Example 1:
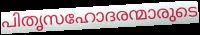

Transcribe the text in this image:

പിതൃസഹോദരന്മാരുടെ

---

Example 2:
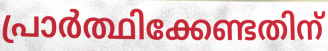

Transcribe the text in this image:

പ്രാർത്ഥിക്കേണ്ടതിന്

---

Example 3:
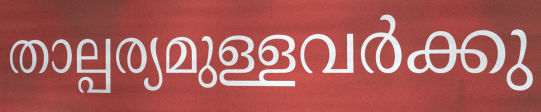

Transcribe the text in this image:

താല്പര്യമുള്ളവർക്കു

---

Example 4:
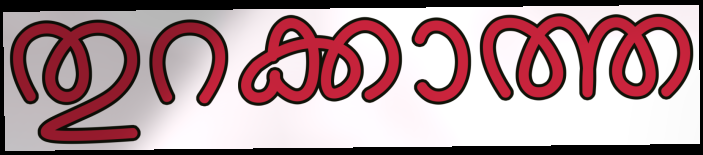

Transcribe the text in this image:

തുറക്കാത്ത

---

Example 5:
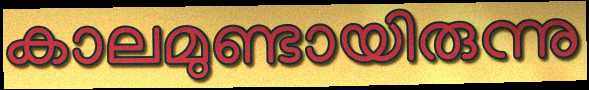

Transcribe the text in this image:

കാലമുണ്ടായിരുന്നു